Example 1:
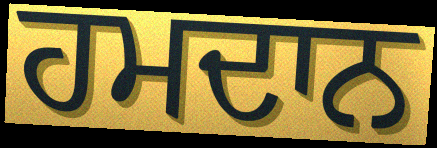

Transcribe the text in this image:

ਹਮਦਾਨ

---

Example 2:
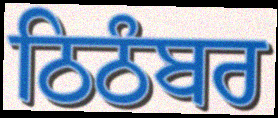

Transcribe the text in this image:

ਠਿਠੰਬਰ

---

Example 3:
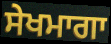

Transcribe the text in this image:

ਸੇਖਮਾਗਾ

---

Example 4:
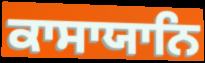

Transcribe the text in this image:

ਕਾਸਾਯਾਨਿ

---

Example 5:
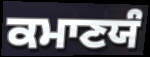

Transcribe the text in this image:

ਕਮਾਣਯੰ